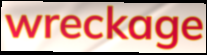
wreckage